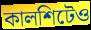
কালশিটেও